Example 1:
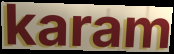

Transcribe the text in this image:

karam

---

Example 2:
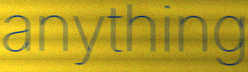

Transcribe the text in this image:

anything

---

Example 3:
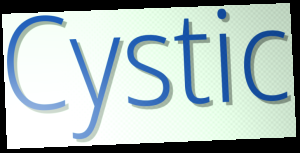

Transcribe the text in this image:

Cystic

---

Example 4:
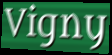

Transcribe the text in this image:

Vigny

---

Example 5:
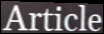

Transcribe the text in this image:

Article